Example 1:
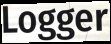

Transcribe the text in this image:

Logger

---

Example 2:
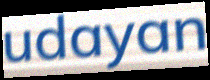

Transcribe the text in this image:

udayan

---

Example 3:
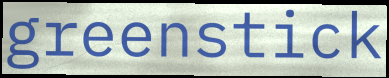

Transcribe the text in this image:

greenstick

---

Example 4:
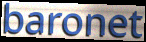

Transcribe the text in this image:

baronet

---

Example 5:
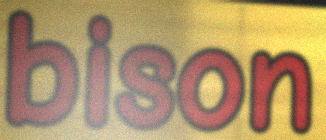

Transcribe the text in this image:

bison